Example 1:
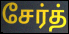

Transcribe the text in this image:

சேர்த்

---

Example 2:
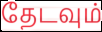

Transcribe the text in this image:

தேடவும்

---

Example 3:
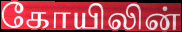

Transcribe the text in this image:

கோயிலின்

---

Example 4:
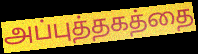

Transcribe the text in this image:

அப்புத்தகத்தை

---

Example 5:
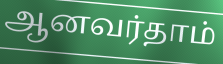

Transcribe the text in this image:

ஆனவர்தாம்